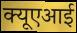
क्यूएआई